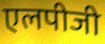
एलपीजी